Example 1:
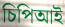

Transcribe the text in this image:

চিপিআই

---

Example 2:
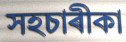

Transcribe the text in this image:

সহচাৰীকা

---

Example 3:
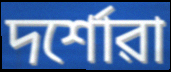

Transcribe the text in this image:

দৰ্শোৱা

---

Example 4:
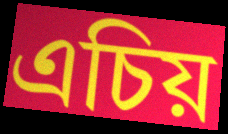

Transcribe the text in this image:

এচিয়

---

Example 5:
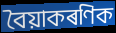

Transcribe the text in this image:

বৈয়াকৰণিক